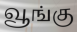
வூங்கு